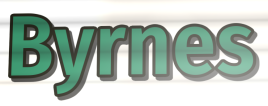
Byrnes